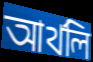
আর্থলি